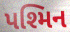
પશ્મિન